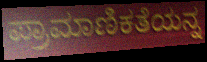
ಪ್ರಾಮಾಣಿಕತೆಯನ್ನ